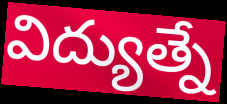
విద్యుత్నే